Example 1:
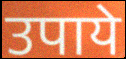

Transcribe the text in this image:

उपाये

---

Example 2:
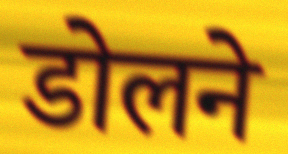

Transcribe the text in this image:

डोलने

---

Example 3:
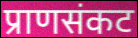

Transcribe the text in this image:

प्राणसंकट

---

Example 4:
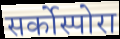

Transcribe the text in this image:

सर्कोस्पोरा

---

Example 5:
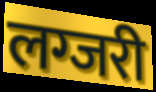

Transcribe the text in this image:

लग्‍जरी